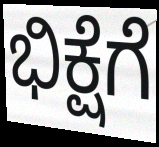
ಭಿಕ್ಷೆಗೆ